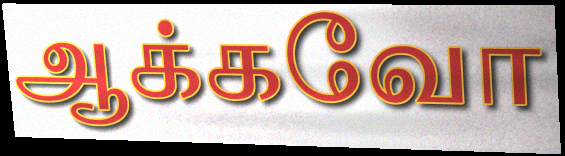
ஆக்கவோ